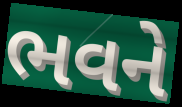
ભવને